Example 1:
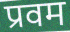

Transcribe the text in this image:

प्रवम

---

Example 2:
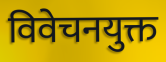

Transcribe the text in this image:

विवेचनयुक्त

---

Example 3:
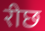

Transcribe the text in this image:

रीछ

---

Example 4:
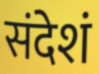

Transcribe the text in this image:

संदेशं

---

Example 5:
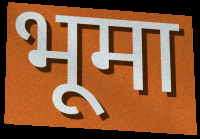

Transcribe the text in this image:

भूमा